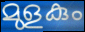
മുളകും